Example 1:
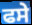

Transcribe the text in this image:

ਫਸੇ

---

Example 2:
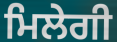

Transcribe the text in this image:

ਮਿਲੇਗੀ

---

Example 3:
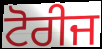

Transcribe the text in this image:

ਟੋਰੀਜ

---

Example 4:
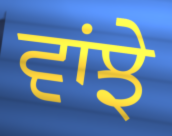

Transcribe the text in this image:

ਵਾਂਝੇ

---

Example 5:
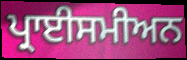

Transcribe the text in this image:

ਪ੍ਰਾਈਸਮੀਅਨ